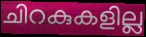
ചിറകുകളില്ല